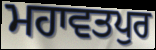
ਮਹਾਵਤਪੁਰ